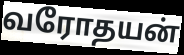
வரோதயன்